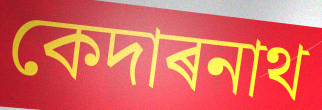
কেদাৰনাথ